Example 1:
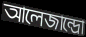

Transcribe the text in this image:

আলেজান্দ্রো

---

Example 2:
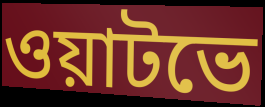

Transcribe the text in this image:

ওয়াটভে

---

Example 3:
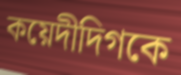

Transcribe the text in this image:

কয়েদীদিগকে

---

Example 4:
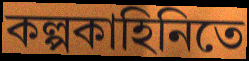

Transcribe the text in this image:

কল্পকাহিনিতে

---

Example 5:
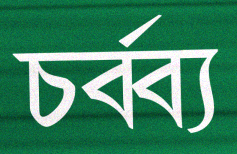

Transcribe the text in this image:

চর্ব্ব্য